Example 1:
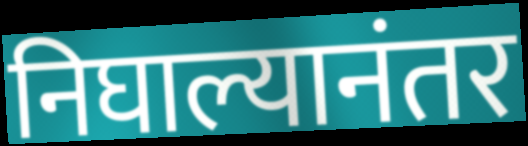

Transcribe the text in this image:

निघाल्यानंतर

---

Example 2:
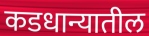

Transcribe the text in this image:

कडधान्यातील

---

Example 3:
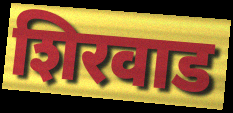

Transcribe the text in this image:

शिरवाड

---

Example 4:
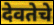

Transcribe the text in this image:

देवतेचे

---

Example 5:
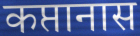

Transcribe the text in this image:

कप्तानास